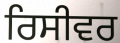
ਰਿਸੀਵਰ